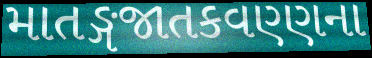
માતઙ્ગજાતકવણ્ણના